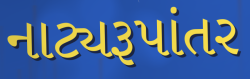
નાટ્યરૂપાંતર